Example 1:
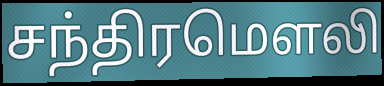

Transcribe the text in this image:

சந்திரமௌலி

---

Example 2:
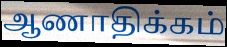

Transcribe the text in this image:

ஆணாதிக்கம்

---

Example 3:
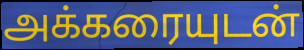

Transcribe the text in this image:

அக்கரையுடன்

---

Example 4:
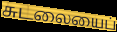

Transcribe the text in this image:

சுடலையைப்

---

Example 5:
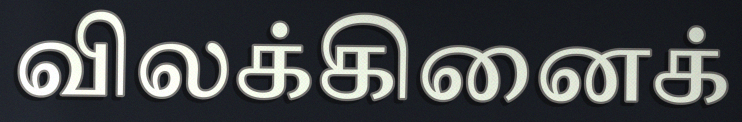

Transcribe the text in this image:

விலக்கினைக்